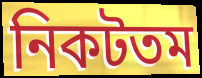
নিকটতম